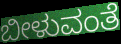
ಬೀಳುವಂತೆ